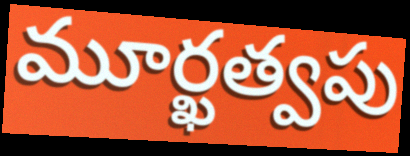
మూర్ఖత్వపు